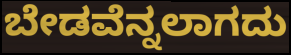
ಬೇಡವೆನ್ನಲಾಗದು